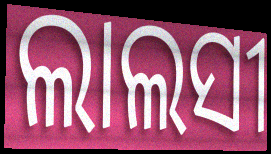
ଲାଲସୀ